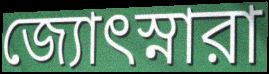
জ্যোৎস্নারা